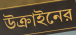
উক্রাইনের